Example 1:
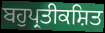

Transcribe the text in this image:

ਬਹੁਪ੍ਰਤੀਕਸ਼ਿਤ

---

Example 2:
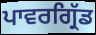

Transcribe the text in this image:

ਪਾਵਰਗ੍ਰਿੱਡ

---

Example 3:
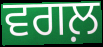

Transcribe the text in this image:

ਵਗਲ਼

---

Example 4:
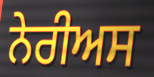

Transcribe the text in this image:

ਨੇਰੀਅਸ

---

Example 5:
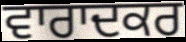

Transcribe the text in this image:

ਵਾਰਾਦਕਰ